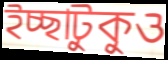
ইচ্ছাটুকুও